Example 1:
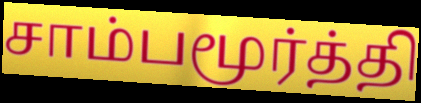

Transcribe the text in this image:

சாம்பமூர்த்தி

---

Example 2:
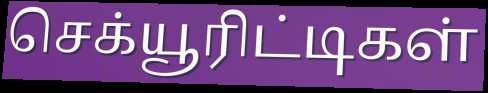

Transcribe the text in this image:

செக்யூரிட்டிகள்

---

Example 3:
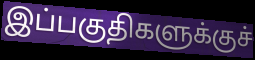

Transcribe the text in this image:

இப்பகுதிகளுக்குச்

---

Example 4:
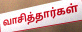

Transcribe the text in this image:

வாசித்தார்கள்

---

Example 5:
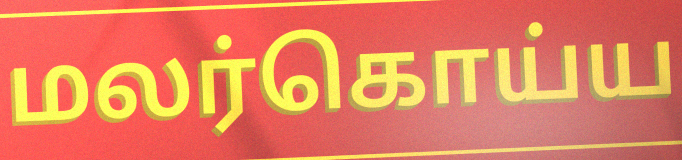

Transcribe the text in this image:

மலர்கொய்ய